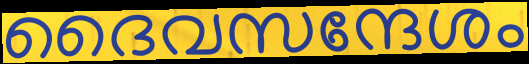
ദൈവസന്ദേശം